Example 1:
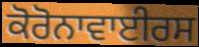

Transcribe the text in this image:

ਕੋਰੋਨਾਵਾਈਰਸ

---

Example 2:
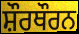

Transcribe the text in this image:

ਸ਼ੌਰਥੌਰਨ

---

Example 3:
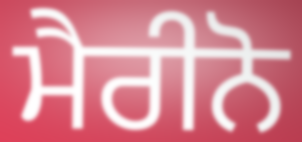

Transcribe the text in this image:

ਮੈਰੀਨੋ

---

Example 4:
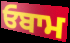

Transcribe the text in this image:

ਓਬਾਮ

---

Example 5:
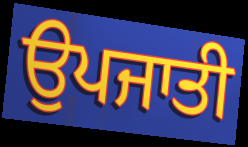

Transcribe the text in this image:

ਉਪਜਾਤੀ